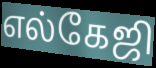
எல்கேஜி